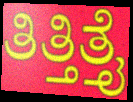
ತಿತ್ತಿತ್ತೈ